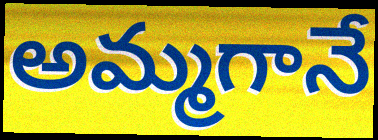
అమ్మగానే